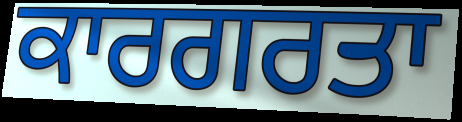
ਕਾਰਗਰਤਾ